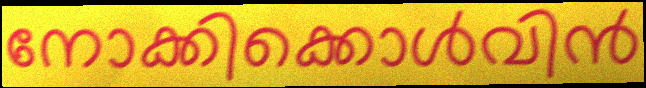
നോക്കിക്കൊൾവിൻ